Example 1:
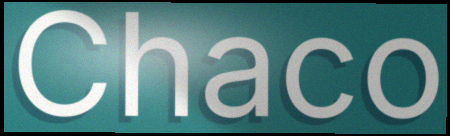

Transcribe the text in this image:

Chaco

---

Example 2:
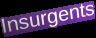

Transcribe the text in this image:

Insurgents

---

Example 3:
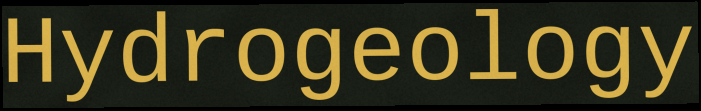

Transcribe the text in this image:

Hydrogeology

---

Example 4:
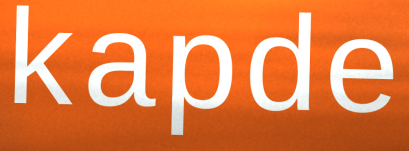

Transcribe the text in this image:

kapde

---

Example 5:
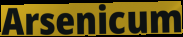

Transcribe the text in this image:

Arsenicum